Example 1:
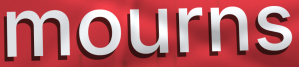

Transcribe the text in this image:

mourns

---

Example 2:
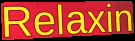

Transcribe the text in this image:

Relaxin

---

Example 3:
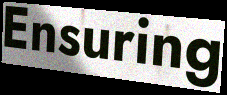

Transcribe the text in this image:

Ensuring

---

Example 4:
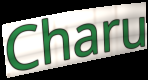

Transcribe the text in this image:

Charu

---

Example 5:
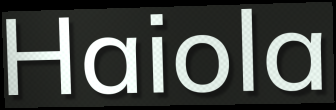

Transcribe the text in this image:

Haiola